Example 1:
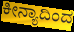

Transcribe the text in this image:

ಕೀನ್ಯಾದಿಂದ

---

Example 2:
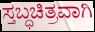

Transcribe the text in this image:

ಸ್ತಬ್ಧಚಿತ್ರವಾಗಿ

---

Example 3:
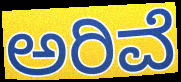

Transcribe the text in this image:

ಅರಿವೆ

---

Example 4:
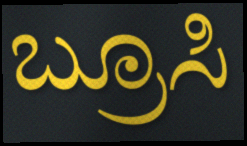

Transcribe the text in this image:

ಬ್ರೂಸಿ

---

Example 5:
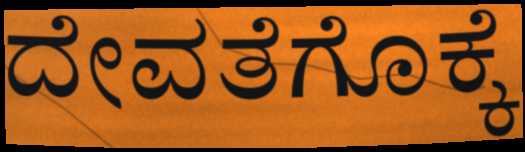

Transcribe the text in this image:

ದೇವತೆಗೊಕ್ಕೆ